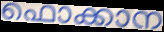
ഫൊക്കാന